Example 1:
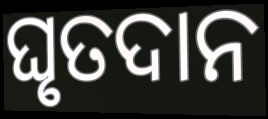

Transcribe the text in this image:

ଘୃତଦାନ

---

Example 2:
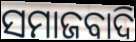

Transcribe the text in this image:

ସମାଜବାଦି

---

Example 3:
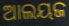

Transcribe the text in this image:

ଆଲୟଜ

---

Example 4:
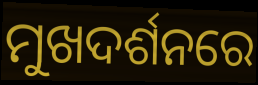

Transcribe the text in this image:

ମୁଖଦର୍ଶନରେ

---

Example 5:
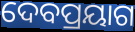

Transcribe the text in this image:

ଦେବପ୍ରୟାଗ